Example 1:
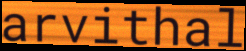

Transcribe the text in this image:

arvithal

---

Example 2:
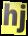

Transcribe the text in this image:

hj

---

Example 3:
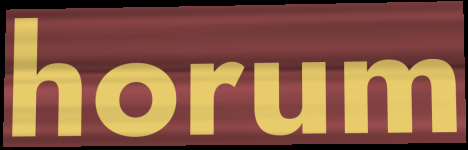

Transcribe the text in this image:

horum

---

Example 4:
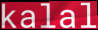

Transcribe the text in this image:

kalal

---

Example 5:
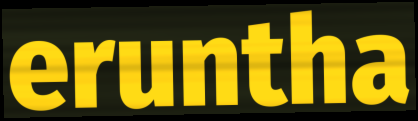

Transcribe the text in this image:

eruntha